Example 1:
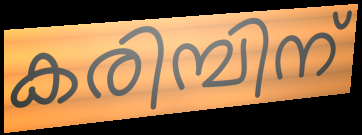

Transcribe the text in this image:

കരിമ്പിന്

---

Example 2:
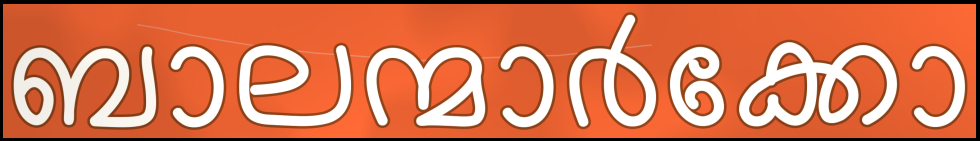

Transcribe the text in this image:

ബാലന്മാർക്കോ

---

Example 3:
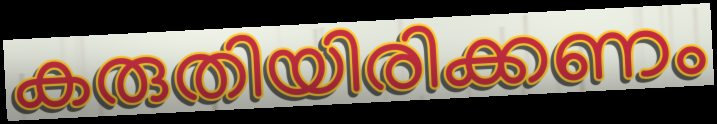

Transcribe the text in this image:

കരുതിയിരിക്കണം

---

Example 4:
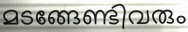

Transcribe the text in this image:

മടങ്ങേണ്ടിവരും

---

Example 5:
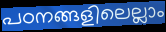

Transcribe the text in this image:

പഠനങ്ങളിലെല്ലാം